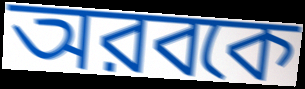
অরবকে